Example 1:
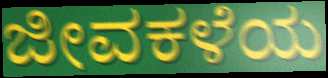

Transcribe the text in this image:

ಜೀವಕಳೆಯ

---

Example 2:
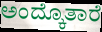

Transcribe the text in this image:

ಅಂದ್ಕೊತಾರೆ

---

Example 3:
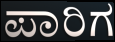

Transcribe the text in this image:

ಪಾರಿಗ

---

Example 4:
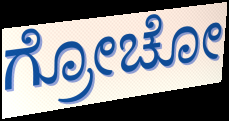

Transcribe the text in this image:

ಗ್ರೋಚೋ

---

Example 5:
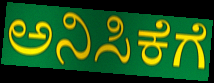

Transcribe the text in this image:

ಅನಿಸಿಕೆಗೆ